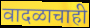
वादळाचाही